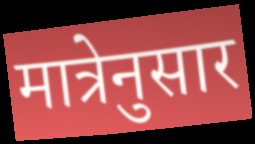
मात्रेनुसार